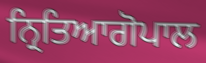
ਨ੍ਰਿਤਿਆਗੋਪਾਲ